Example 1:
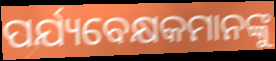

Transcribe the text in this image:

ପର୍ଯ୍ୟବେକ୍ଷକମାନଙ୍କୁ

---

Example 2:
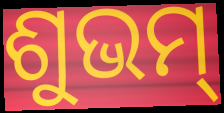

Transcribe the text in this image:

ଶୁଭମ୍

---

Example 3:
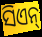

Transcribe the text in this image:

ସିଏନ୍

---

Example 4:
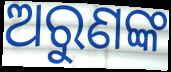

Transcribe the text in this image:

ଅରୁଣଙ୍କ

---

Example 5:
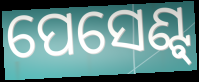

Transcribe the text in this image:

ପେସେଣ୍ଟ୍